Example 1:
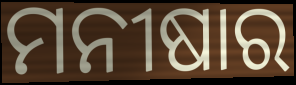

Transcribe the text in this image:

ମନୀଷାର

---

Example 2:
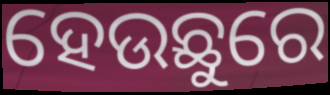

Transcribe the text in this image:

ହେଉଛୁରେ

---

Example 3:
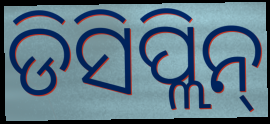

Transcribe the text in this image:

ଡିସିପ୍ଲିନ୍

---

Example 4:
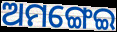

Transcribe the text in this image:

ଅମଙ୍ଗେଇ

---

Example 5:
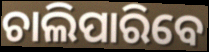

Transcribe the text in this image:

ଚାଲିପାରିବେ